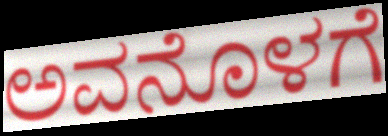
ಅವನೊಳಗೆ